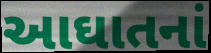
આઘાતનાં